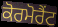
ਕੋਰਮੋਰੈਂਟ